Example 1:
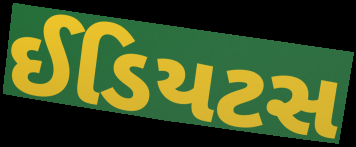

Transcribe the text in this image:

ઈડિયટસ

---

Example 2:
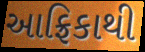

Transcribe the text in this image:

આફ્રિકાથી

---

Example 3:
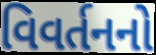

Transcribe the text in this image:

વિવર્તનનો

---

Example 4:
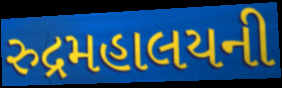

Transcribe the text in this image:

રુદ્રમહાલયની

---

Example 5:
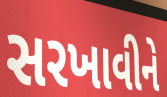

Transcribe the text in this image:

સરખાવીને